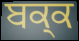
ਬਕ੍ਕ